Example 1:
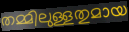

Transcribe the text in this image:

തമ്മിലുള്ളതുമായ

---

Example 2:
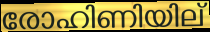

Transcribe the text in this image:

രോഹിണിയില്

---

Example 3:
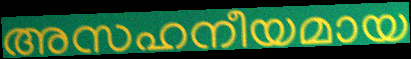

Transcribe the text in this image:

അസഹനീയമായ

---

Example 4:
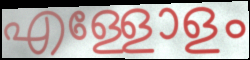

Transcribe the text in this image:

എള്ളോളം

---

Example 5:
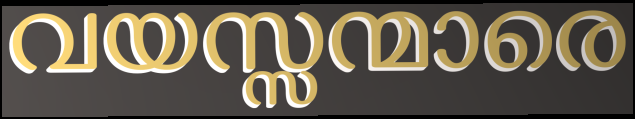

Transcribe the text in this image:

വയസ്സന്മാരെ